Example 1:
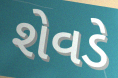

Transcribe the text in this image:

શેવડે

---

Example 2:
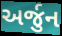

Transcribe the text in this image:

અર્જુન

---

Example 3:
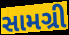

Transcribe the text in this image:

સામગ્રી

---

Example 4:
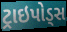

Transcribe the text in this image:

ટ્રાઇપોડ્સ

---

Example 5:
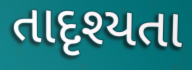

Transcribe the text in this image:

તાદૃશ્યતા